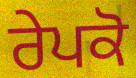
ਰੇਪਕੋ